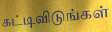
கட்டிவிடுங்கள்